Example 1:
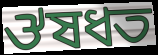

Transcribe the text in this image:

ঔষধত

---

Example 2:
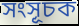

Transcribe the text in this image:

সংসূচক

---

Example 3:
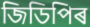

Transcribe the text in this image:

জিডিপিৰ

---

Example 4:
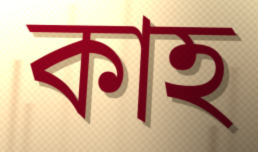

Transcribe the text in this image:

কাহ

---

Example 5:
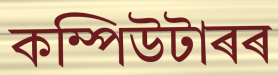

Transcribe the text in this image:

কম্পিউটাৰৰ